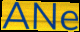
ANe